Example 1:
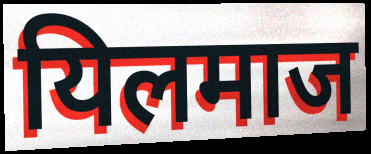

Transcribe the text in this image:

यिलमाज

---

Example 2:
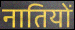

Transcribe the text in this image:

नातियों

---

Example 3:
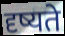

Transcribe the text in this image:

दृष्यते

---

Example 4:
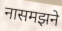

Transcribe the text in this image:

नासमझने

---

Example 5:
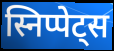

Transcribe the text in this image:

स्निप्पेट्स